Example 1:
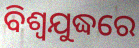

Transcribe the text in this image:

ବିଶ୍ଵଯୁଦ୍ଧରେ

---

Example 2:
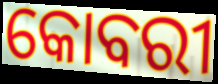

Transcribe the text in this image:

କୋବରୀ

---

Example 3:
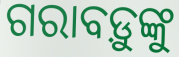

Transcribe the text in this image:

ଗରାବଡ଼ୁଙ୍କୁ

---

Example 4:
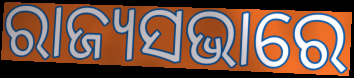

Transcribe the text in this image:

ରାଜ୍ୟସଭାରେ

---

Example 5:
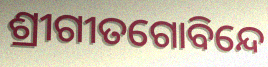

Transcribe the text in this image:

ଶ୍ରୀଗୀତଗୋବିନ୍ଦେ